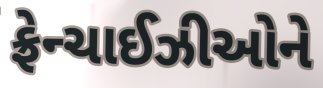
ફ્રેન્ચાઈઝીઓને